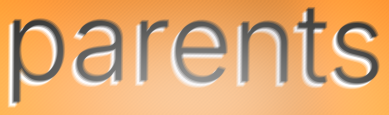
parents